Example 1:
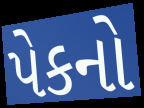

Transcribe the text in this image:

પેકનો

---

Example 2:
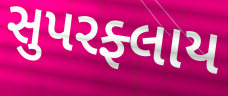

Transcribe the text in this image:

સુપરફ્લાય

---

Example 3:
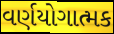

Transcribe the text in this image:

વર્ણયોગાત્મક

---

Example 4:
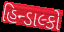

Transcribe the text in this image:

હિન્ડાલ્કો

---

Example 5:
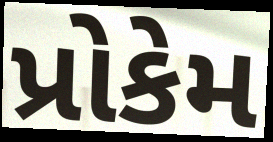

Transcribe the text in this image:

પ્રોકેમ